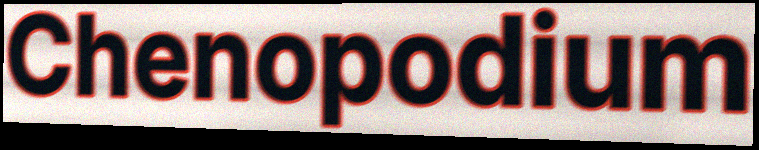
Chenopodium